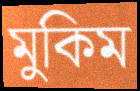
মুকিম